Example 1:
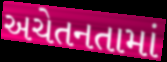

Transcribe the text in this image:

અચેતનતામાં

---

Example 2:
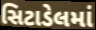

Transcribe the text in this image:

સિટાડેલમાં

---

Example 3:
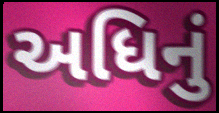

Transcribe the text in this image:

અધિનું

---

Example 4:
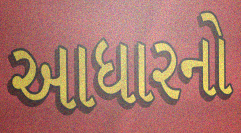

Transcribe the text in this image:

આધારનો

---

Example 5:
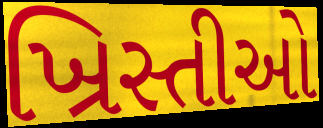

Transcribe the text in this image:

ખ્રિસ્તીઓ